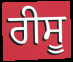
ਰੀਸੂ